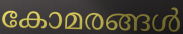
കോമരങ്ങൾ